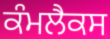
ਕੰਮਲੈਕਸ